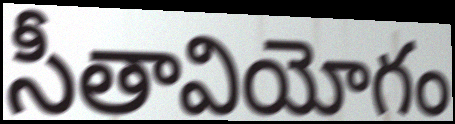
సీతావియోగం